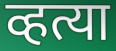
व्हत्या